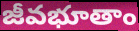
జీవభూతాం